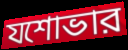
যশোভার